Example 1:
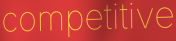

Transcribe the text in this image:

competitive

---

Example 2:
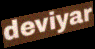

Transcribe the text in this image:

deviyar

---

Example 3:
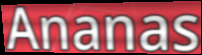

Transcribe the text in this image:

Ananas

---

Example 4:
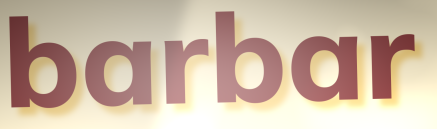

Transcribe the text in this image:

barbar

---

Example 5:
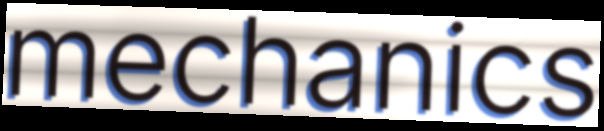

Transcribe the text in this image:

mechanics